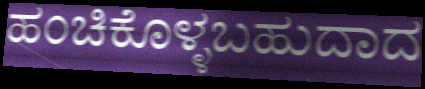
ಹಂಚಿಕೊಳ್ಳಬಹುದಾದ